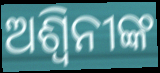
ଅଶ୍ୱିନୀଙ୍କ